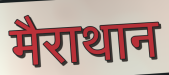
मैराथान